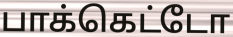
பாக்கெட்டோ